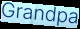
Grandpa